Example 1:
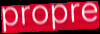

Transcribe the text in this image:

propre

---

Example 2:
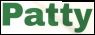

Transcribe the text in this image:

Patty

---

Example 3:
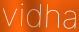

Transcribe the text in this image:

vidha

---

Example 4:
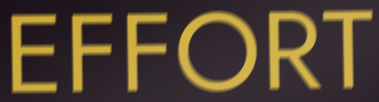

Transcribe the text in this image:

EFFORT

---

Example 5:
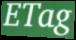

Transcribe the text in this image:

ETag